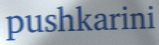
pushkarini